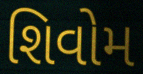
શિવોમ